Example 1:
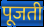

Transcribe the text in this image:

पूजती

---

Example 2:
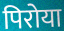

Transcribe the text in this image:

पिरोया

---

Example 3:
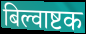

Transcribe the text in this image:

बिल्वाष्टक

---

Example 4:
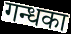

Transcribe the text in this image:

गन्धका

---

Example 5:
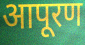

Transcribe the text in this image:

आपूरण